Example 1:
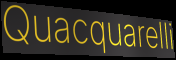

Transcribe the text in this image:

Quacquarelli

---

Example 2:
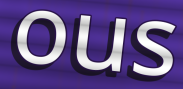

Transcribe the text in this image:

ous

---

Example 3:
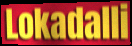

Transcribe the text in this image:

Lokadalli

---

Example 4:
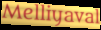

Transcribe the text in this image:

Melliyaval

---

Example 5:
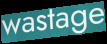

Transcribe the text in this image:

wastage